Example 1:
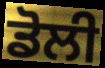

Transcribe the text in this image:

ਡੋਲੀ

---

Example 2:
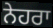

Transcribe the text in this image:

ਨੇਹਰਾ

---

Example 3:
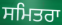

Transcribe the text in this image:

ਸਮਿਤਰਾ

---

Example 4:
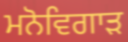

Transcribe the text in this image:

ਮਨੋਵਿਗਾੜ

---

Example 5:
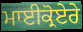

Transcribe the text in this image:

ਮਾਈਕ੍ਰੋਏਰੇ